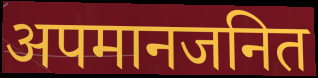
अपमानजनित